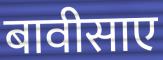
बावीसाए